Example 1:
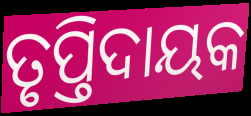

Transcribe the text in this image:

ତୃପ୍ତିଦାୟକ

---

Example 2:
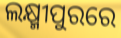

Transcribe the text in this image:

ଲକ୍ଷ୍ମୀପୁରରେ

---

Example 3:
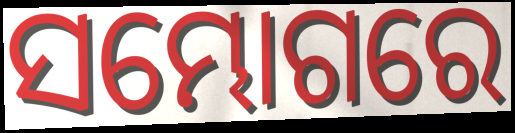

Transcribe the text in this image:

ସମ୍ଭୋଗରେ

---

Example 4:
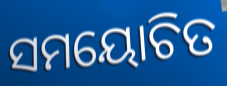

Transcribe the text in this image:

ସମୟୋଚିତ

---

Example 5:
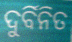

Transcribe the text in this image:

ଦୁର୍ବିନିତ